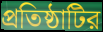
প্রতিষ্ঠাটির